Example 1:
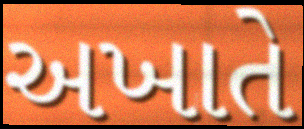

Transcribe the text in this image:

અખાતે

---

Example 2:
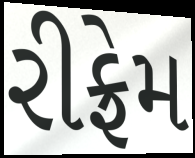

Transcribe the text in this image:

રીફ્રેમ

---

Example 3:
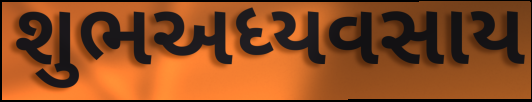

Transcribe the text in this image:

શુભઅધ્યવસાય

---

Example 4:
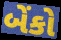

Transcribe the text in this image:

બેંકો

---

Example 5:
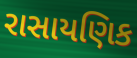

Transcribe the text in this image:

રાસાયણિક